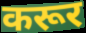
करूर